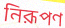
নিরূপণ